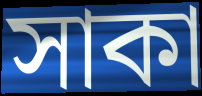
সাকা